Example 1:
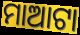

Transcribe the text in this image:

ମାଆଟା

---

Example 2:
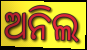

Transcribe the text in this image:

ଅନିଲ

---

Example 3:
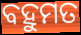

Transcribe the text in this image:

ବହୁମତ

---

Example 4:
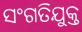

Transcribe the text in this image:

ସଂଗତିଯୁକ୍ତ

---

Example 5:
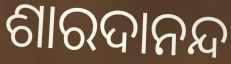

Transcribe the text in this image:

ଶାରଦାନନ୍ଦ